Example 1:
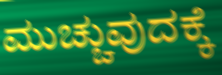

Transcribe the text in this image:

ಮುಚ್ಚುವುದಕ್ಕೆ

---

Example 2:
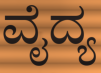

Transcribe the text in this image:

ವೈದ್ಯ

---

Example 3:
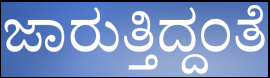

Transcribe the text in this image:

ಜಾರುತ್ತಿದ್ದಂತೆ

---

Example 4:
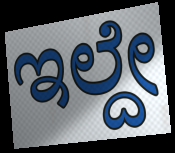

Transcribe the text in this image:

ಇಲ್ದೇ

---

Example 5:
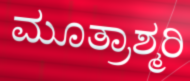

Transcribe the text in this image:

ಮೂತ್ರಾಶ್ಮರಿ